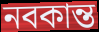
নবকান্ত